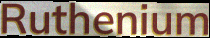
Ruthenium